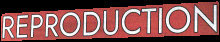
REPRODUCTION